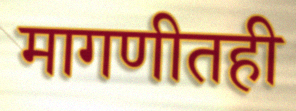
मागणीतही